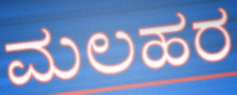
ಮಲಹರ